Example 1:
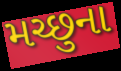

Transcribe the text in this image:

મચ્છુના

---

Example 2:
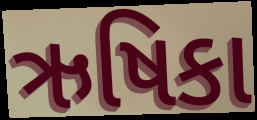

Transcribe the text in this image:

ઋષિકા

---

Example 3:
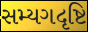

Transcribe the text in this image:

સમ્યગદૃષ્ટિ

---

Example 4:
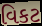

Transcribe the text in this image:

વિકટ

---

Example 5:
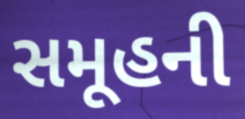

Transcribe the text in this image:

સમૂહની